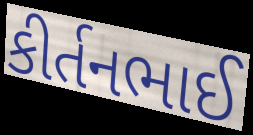
કીર્તનભાઈ